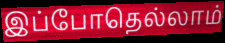
இப்போதெல்லாம்